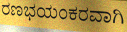
ರಣಭಯಂಕರವಾಗಿ